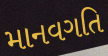
માનવગતિ